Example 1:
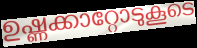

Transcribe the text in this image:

ഉഷ്ണക്കാറ്റോടുകൂടെ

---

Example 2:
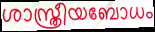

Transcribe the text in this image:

ശാസ്ത്രീയബോധം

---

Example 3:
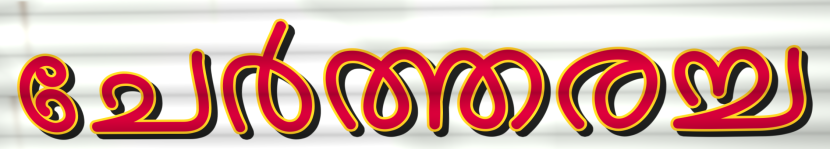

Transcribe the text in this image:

ചേർത്തരച്ച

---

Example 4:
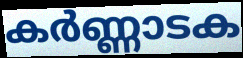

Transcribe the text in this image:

കർണ്ണാടക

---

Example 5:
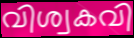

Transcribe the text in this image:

വിശ്വകവി